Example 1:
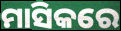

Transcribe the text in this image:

ମାସିକରେ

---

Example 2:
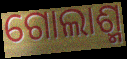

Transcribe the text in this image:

ଗୋଲାଶ୍ମ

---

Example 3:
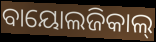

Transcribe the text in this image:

ବାୟୋଲଜିକାଲ୍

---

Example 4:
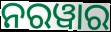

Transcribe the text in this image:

ନରୱାର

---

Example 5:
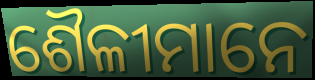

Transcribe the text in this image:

ଶୈଳୀମାନେ